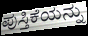
ಪುಸ್ತಿಕೆಯನ್ನು